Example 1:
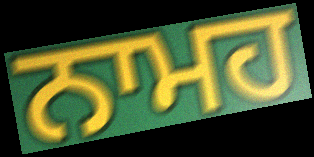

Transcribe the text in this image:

ਨਾਮਹ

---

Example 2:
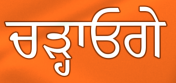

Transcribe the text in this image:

ਚੜ੍ਹਾਓਗੇ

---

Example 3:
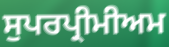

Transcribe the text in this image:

ਸੁਪਰਪ੍ਰੀਮੀਅਮ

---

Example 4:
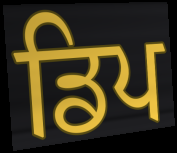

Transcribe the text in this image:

ਡਿਪ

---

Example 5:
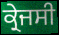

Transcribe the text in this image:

ਕ੍ਰੇਜਸੀ